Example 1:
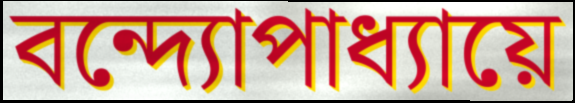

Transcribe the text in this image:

বন্দ্যোপাধ্যায়ে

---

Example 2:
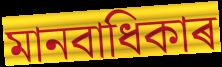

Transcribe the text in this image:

মানবাধিকাৰ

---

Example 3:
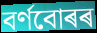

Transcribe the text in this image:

বৰ্ণবোৰৰ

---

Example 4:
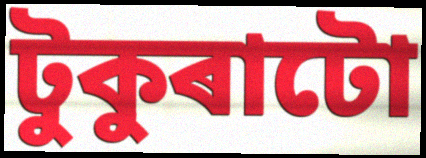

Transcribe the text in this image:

টুকুৰাটো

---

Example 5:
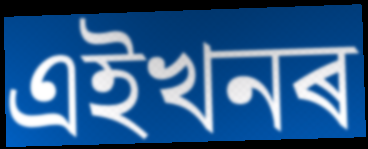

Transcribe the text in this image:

এইখনৰ